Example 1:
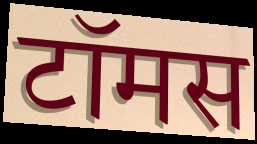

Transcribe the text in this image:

टॉमस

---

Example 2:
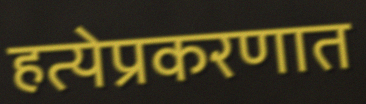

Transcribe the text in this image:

हत्येप्रकरणात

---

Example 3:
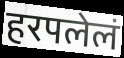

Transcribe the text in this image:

हरपलेलं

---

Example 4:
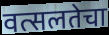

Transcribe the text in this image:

वत्सलतेचा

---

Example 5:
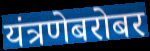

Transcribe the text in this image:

यंत्रणेबरोबर